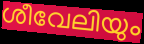
ശീവേലിയും